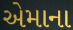
એમાના